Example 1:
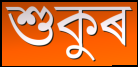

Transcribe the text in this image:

শুকুৰ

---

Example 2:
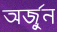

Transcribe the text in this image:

অৰ্জুন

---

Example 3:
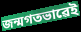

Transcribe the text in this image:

জন্মগতভাৱেই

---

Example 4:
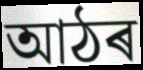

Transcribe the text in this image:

আঠৰ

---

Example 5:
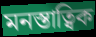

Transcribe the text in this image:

মনস্তাত্বিক